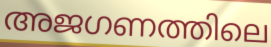
അജഗണത്തിലെ